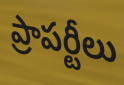
ప్రాపర్టీలు